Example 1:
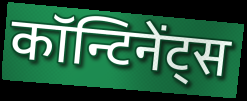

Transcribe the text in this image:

कॉन्टिनेंट्स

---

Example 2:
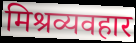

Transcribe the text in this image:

मिश्रव्यवहार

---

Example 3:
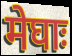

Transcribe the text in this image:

मेघाः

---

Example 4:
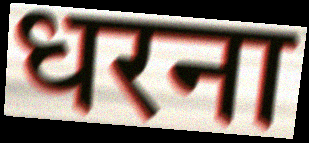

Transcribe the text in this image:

धरना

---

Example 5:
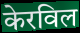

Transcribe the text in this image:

केरविल